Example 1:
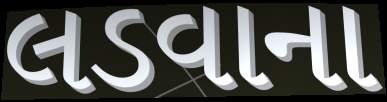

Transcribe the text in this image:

લડવાના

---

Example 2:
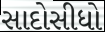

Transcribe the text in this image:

સાદોસીધો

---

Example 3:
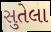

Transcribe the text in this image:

સુતેલા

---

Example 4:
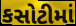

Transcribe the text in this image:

કસોટીમાં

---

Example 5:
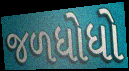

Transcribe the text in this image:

જળધોધો